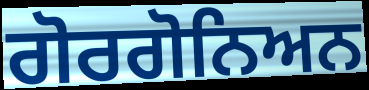
ਗੋਰਗੋਨਿਅਨ